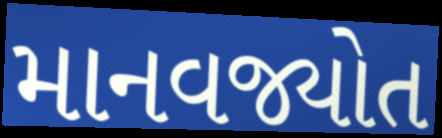
માનવજ્યોત